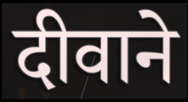
दीवाने